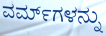
ವರ್ಮ್‌ಗಳನ್ನು